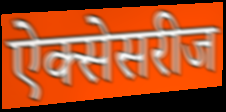
ऐक्सेसरीज